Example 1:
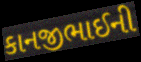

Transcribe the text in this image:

કાનજીભાઈની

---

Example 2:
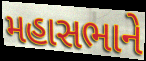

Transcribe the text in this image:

મહાસભાને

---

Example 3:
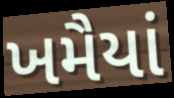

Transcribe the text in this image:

ખમૈયાં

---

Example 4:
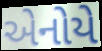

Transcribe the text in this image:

એનોયે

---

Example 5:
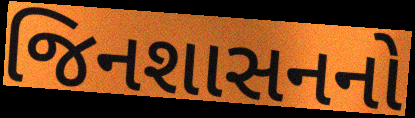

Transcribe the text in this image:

જિનશાસનનો